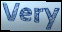
Very